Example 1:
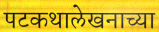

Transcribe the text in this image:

पटकथालेखनाच्या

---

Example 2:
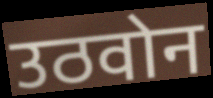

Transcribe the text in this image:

उठवोन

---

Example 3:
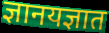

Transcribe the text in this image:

ज्ञानयज्ञात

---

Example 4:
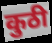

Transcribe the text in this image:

कुठी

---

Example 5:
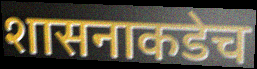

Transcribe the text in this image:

शासनाकडेच